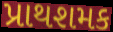
પ્રાથશમક